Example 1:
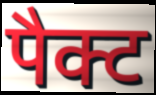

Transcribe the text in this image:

पैक्ट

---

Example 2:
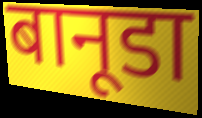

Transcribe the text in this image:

बानूडा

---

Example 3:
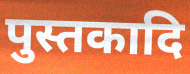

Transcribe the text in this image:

पुस्तकादि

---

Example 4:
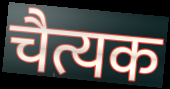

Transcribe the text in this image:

चैत्यक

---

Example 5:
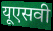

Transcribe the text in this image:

यूएसवी